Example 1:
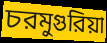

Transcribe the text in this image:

চরমুগুরিয়া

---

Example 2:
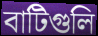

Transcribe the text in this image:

বাটিগুলি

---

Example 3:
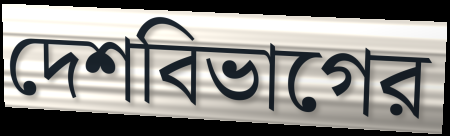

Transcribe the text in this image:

দেশবিভাগের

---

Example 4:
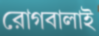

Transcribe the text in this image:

রোগবালাই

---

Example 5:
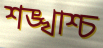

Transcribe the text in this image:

শঙ্খাশ্চ